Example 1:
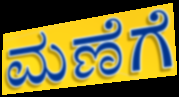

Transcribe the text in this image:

ಮಣೆಗೆ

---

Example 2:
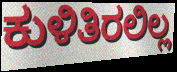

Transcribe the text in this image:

ಕುಳಿತಿರಲಿಲ್ಲ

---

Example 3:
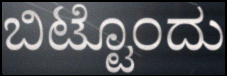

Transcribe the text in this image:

ಬಿಟ್ಟೊಂದು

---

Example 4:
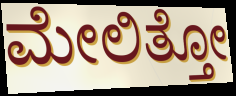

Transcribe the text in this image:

ಮೇಲಿತ್ತೋ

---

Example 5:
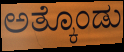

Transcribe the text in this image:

ಅತ್ಕೊಂಡು